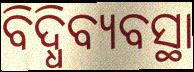
ବିଦ୍ଧିବ୍ୟବସ୍ଥା